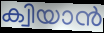
ക്വിയാൻ